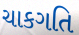
ચાકગતિ